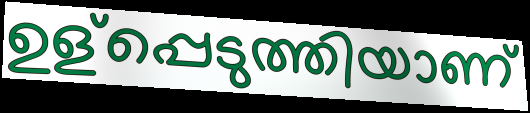
ഉള്പ്പെടുത്തിയാണ്